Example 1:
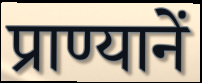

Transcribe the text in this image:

प्राण्यानें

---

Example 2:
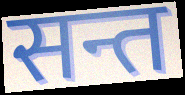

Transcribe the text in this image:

सन्त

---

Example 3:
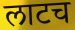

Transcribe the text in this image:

लाटच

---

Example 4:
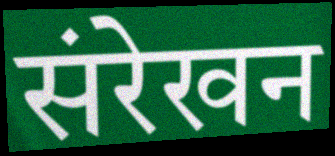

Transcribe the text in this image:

संरेखन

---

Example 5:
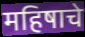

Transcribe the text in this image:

महिषाचे